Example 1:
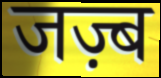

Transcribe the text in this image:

जज़्ब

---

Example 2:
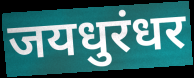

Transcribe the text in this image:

जयधुरंधर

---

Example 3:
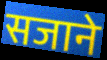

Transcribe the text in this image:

सजाने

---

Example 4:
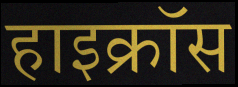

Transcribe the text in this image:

हाइक्रॉस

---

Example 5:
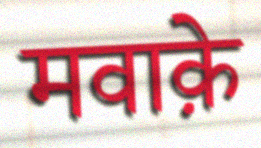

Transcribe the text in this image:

मवाक़े